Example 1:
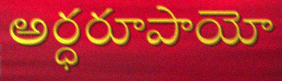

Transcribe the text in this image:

అర్ధరూపాయో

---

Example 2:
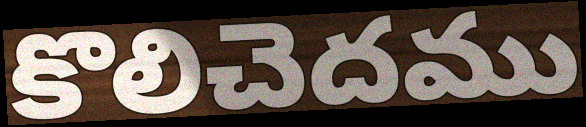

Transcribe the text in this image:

కొలిచెదము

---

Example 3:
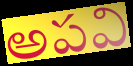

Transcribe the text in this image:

అపవి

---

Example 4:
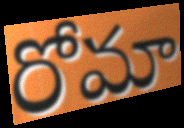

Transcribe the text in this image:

రోమా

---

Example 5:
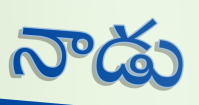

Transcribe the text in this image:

నాడు